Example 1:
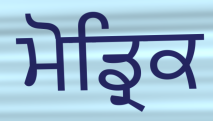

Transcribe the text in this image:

ਮੋਡ੍ਰਿਕ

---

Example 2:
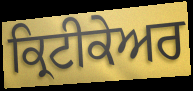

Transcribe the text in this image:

ਕ੍ਰਿਟੀਕੇਅਰ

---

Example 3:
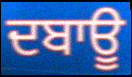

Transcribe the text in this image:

ਦਬਾਊ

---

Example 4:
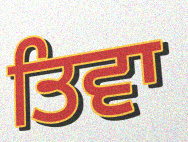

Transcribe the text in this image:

ਤਿਵਾ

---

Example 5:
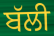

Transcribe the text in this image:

ਬੱਲੀ